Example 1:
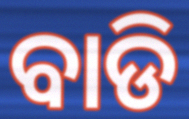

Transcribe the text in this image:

ବାଡି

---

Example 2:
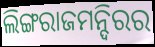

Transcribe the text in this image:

ଲିଙ୍ଗରାଜମନ୍ଦିରର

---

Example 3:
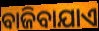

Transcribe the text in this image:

ବାଜିବାଯାଏ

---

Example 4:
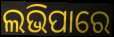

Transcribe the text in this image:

ଲଭିପାରେ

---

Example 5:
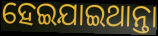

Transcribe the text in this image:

ହେଇଯାଇଥାନ୍ତା